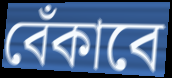
বেঁকাবে